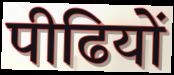
पीढियों